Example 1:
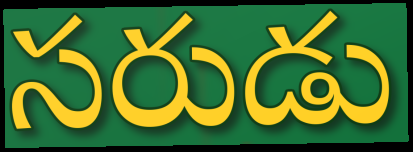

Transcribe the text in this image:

సరుడు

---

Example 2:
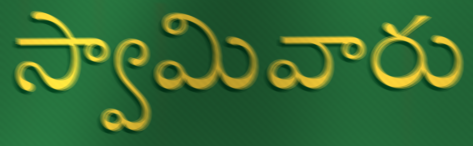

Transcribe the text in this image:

స్వామివారు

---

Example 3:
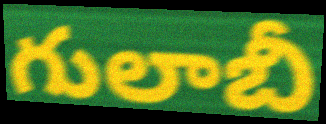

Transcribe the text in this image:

గులాబీ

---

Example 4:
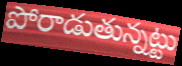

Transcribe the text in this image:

పోరాడుతున్నట్టు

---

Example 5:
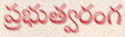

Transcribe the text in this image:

ప్రభుత్వరంగ